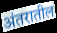
अंतरातील